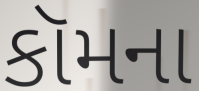
કૉમના